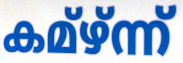
കമ്ഴ്ന്ന്